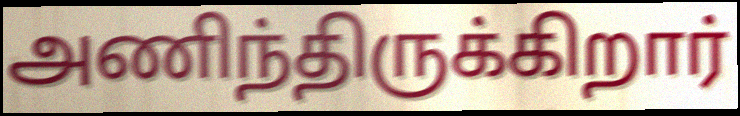
அணிந்திருக்கிறார்